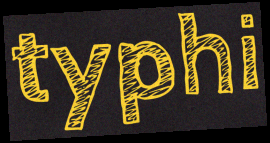
typhi